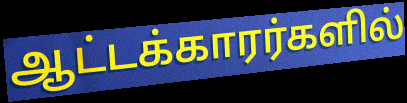
ஆட்டக்காரர்களில்